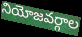
నియోజవర్గాల